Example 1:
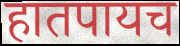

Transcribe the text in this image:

हातपायच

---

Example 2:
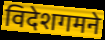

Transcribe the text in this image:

विदेशगमने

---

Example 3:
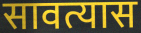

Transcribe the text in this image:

सावत्यास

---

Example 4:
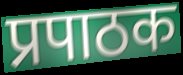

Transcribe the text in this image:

प्रपाठक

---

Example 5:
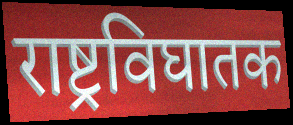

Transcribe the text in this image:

राष्ट्रविघातक